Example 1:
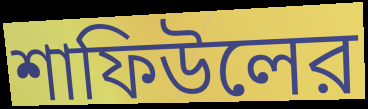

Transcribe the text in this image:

শাফিউলের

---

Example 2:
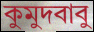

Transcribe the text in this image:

কুমুদবাবু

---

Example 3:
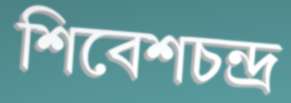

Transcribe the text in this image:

শিবেশচন্দ্র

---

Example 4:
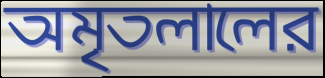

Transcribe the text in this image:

অমৃতলালের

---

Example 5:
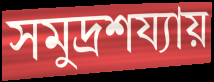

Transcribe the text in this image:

সমুদ্রশয্যায়